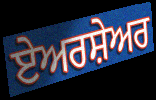
ਏਅਰਸ਼ੇਅਰ